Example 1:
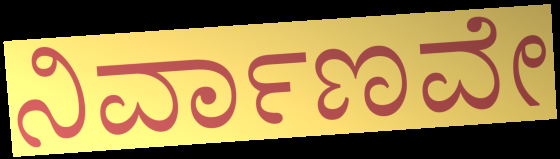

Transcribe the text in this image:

ನಿರ್ವಾಣವೇ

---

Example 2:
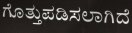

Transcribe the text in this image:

ಗೊತ್ತುಪಡಿಸಲಾಗಿದೆ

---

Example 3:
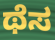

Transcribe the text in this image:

ಥೆಸ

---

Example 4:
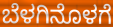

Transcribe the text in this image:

ಬೆಳಗಿನೊಳಗೆ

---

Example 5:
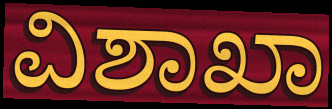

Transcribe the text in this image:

ವಿಶಾಖಾ